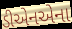
ડીએનએના